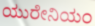
ಯುರೇನಿಯಂ